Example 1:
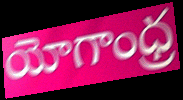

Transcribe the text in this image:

యోగాంధ్ర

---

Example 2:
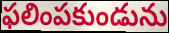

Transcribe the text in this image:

ఫలింపకుండును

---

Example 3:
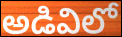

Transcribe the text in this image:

అడివిలో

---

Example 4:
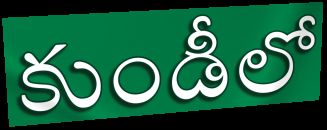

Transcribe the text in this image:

కుండీలో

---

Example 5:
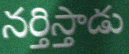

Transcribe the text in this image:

నర్తిస్తాడు